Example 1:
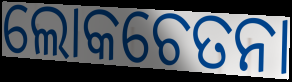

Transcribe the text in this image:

ଲୋକଚେତନା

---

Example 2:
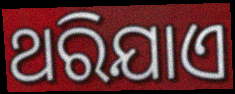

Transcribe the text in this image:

ଥରିଯାଏ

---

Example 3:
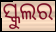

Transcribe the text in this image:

ସ୍କୁଲର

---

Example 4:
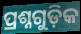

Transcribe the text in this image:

ପ୍ରଶ୍ନଗୁଡ଼ିକ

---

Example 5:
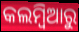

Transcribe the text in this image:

କଲମ୍ବିଆରୁ